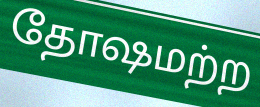
தோஷமற்ற